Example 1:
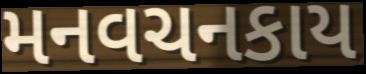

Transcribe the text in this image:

મનવચનકાય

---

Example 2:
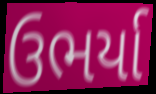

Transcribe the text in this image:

ઉભર્યા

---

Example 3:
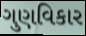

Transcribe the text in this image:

ગુણવિકાર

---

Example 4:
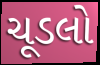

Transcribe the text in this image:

ચૂડલો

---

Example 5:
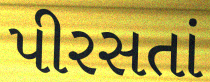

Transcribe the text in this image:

પીરસતાં